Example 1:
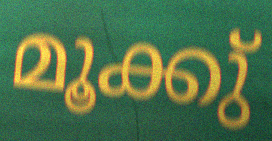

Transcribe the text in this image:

മൂക്കു്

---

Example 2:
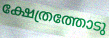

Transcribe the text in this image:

ക്ഷേത്രത്തോടു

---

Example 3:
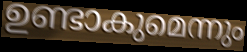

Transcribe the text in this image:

ഉണ്ടാകുമെന്നും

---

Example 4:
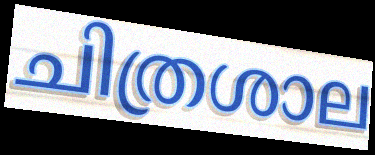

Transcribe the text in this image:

ചിത്രശാല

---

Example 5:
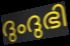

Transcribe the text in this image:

ദുംദുഭി